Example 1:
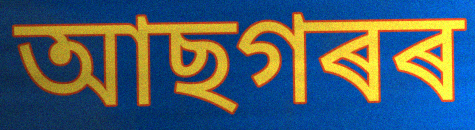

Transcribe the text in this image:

আছগৰৰ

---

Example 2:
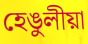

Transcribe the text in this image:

হেঙুলীয়া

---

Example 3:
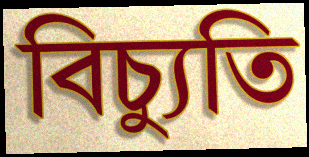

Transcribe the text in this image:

বিচ্যুতি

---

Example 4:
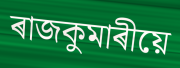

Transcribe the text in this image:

ৰাজকুমাৰীয়ে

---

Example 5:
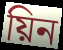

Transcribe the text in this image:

য়িন